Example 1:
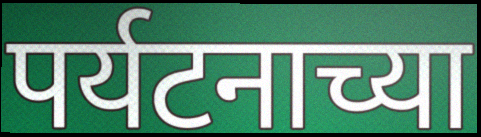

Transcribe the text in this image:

पर्यटनाच्या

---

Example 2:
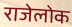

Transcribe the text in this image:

राजेलोक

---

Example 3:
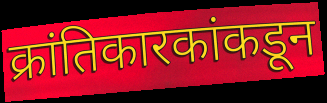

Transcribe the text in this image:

क्रांतिकारकांकडून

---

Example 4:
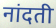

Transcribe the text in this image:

नांदती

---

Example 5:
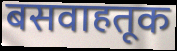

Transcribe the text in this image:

बसवाहतूक